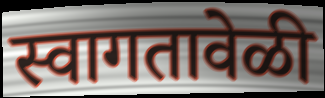
स्वागतावेळी